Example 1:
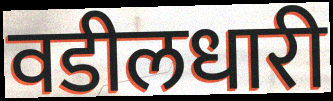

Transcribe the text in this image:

वडीलधारी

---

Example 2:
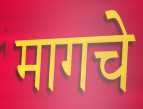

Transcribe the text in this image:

मागचे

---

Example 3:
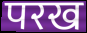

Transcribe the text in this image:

परख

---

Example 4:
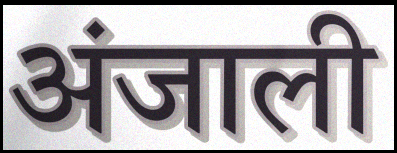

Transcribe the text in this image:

अंजाली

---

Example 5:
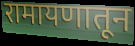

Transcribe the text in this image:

रामायणातून